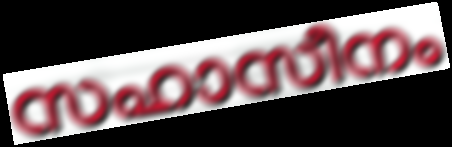
സഹാസീനം